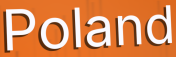
Poland